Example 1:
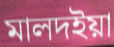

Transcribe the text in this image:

মালদইয়া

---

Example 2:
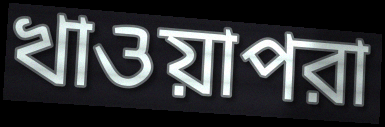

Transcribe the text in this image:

খাওয়াপরা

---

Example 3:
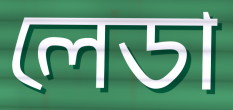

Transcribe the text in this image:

লেডা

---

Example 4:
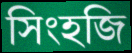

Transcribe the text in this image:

সিংহজি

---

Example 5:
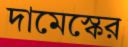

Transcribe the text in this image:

দামেস্কের